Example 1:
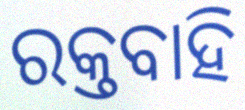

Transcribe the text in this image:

ରକ୍ତବାହି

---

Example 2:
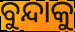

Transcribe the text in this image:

ବୁନ୍ଦାକୁ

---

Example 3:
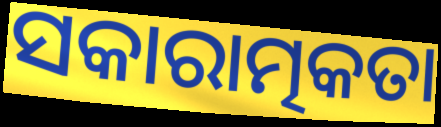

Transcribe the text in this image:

ସକାରାତ୍ମକତା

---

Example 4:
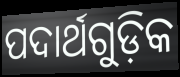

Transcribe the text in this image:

ପଦାର୍ଥଗୁଡ଼ିକ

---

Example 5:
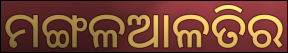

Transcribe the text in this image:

ମଙ୍ଗଳଆଳତିର